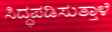
ಸಿದ್ಧಪಡಿಸುತ್ತಾಳೆ